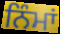
ਨਿੰਮਾਂ